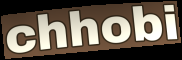
chhobi